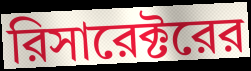
রিসারেক্টরের